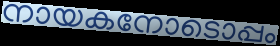
നായകനോടൊപ്പം